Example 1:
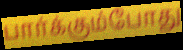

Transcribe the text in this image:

பார்க்கும்போது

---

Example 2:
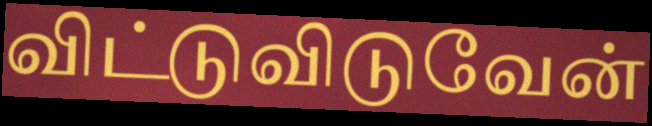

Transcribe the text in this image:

விட்டுவிடுவேன்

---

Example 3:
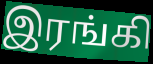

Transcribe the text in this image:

இரங்கி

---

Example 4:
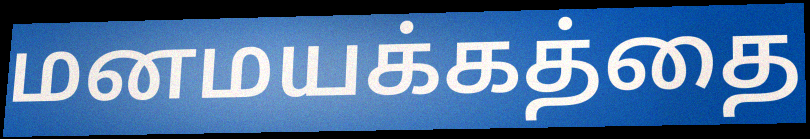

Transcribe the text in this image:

மனமயக்கத்தை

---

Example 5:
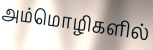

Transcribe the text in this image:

அம்மொழிகளில்